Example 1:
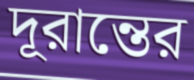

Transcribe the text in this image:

দূরান্তের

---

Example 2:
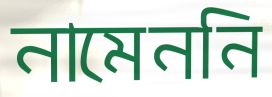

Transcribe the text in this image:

নামেননি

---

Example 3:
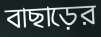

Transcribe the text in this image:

বাছাড়ের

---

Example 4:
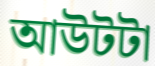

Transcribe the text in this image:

আউটটা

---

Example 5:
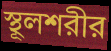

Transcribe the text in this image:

স্থূলশরীর